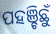
ପହଞ୍ଚିଛୁଁ